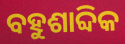
ବହୁଶାବ୍ଦିକ